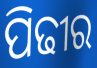
ପିଢୀର